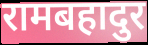
रामबहादुर